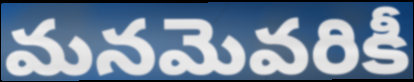
మనమెవరికీ